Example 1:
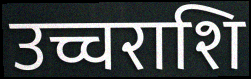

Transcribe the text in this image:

उच्चराशि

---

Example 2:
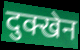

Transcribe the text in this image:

दुक्खेन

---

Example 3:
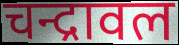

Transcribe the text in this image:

चन्द्रावल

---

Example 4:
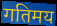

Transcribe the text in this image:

गतिमय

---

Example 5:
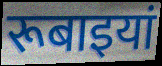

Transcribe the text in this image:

रूबाइयां